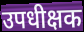
उपधीक्षक